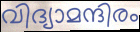
വിദ്യാമന്ദിരം